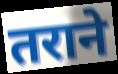
तराने